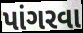
પાંગરવા